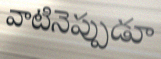
వాటినెప్పుడూ